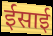
ईसाई